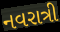
નવરાત્રી